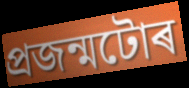
প্ৰজন্মটোৰ